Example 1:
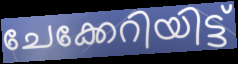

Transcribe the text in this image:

ചേക്കേറിയിട്ട്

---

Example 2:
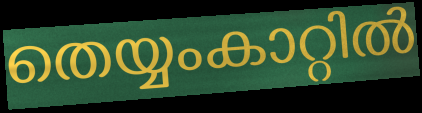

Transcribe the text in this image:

തെയ്യംകാറ്റിൽ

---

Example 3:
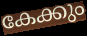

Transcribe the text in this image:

കേക്കും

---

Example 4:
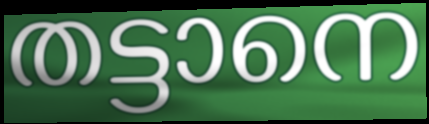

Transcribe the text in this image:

തട്ടാനെ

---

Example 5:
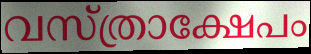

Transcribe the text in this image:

വസ്ത്രാക്ഷേപം